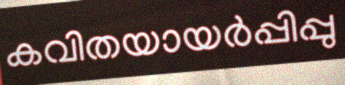
കവിതയായർപ്പിപ്പു